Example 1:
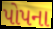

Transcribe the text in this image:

પોપના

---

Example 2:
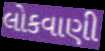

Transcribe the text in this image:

લોકવાણી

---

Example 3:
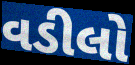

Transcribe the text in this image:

વડીલો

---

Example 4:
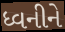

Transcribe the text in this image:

ધ્વનીને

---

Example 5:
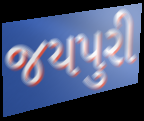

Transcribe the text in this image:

જયપુરી